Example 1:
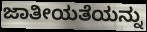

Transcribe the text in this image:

ಜಾತೀಯತೆಯನ್ನು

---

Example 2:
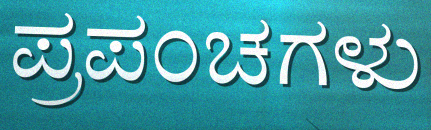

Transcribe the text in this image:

ಪ್ರಪಂಚಗಳು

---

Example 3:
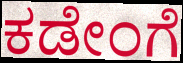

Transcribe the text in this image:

ಕಡೇಂಗೆ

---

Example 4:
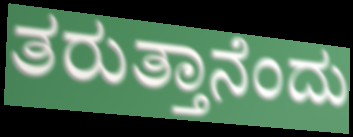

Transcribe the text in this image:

ತರುತ್ತಾನೆಂದು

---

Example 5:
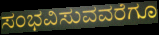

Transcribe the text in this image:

ಸಂಭವಿಸುವವರೆಗೂ